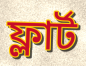
ফ্লার্ট